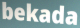
bekada